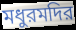
মধুরমদির